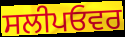
ਸਲੀਪਓਵਰ